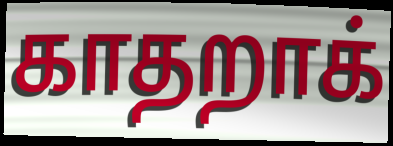
காதறாக்